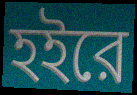
হইরে